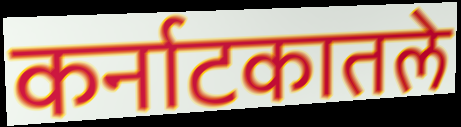
कर्नाटकातले